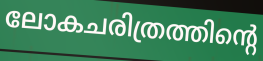
ലോകചരിത്രത്തിന്റെ